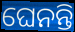
ଘେନନ୍ତି